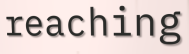
reaching